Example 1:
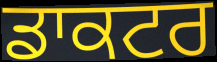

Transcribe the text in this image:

ਡਾਕਟਰ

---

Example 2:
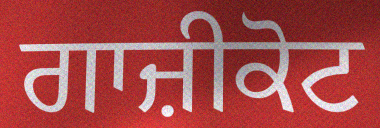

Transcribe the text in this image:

ਗਾਜ਼ੀਕੋਟ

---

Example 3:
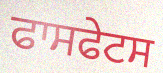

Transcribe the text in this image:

ਫਾਸਫੇਟਸ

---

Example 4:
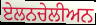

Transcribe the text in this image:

ਏਲਨਚੇਲੀਅਨ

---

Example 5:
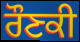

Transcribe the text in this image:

ਰੌਣਕੀ